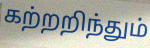
கற்றறிந்தும்